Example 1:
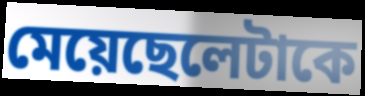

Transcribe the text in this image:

মেয়েছেলেটাকে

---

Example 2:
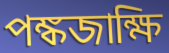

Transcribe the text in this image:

পঙ্কজাক্ষি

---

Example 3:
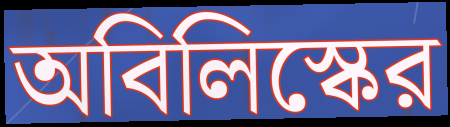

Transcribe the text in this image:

অবিলিস্কের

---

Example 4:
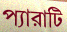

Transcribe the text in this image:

প্যারাটি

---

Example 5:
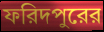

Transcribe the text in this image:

ফরিদপুরের